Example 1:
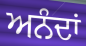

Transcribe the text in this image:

ਅਨੰਦਾਂ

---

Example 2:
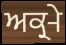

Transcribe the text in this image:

ਅਕ੍ਰ੍ਮੇ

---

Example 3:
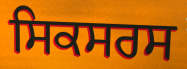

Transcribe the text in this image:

ਸਿਕਸਰਸ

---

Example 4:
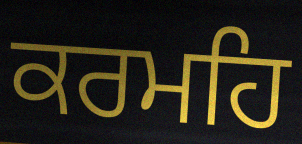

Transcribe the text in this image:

ਕਰਮਹਿ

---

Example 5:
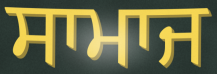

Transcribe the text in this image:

ਸਾਮਾਜ